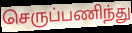
செருப்பணிந்து